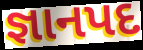
જ્ઞાનપદ